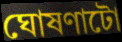
ঘোষণাটো